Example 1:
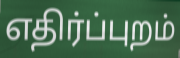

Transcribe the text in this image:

எதிர்ப்புறம்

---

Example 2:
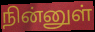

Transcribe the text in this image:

நின்னுள்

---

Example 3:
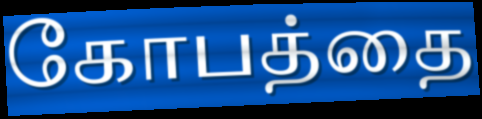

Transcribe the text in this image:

கோபத்தை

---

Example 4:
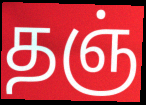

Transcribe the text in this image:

தஞ்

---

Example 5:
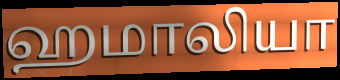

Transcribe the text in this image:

ஹமாலியா